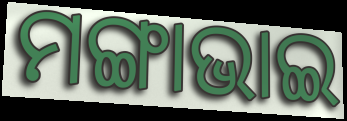
ମଙ୍ଗାଭାଇ